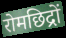
रोमछिद्रों